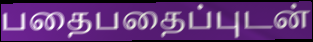
பதைபதைப்புடன்